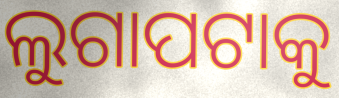
ଲୁଗାପଟାକୁ